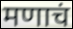
मणाचं